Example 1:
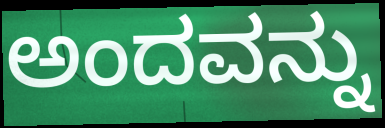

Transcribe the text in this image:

ಅಂದವನ್ನು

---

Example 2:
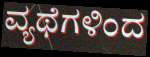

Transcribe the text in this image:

ವ್ಯಥೆಗಳಿಂದ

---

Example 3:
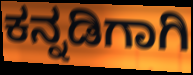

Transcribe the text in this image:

ಕನ್ನಡಿಗಾಗಿ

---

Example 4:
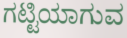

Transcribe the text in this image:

ಗಟ್ಟಿಯಾಗುವ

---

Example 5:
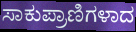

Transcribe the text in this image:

ಸಾಕುಪ್ರಾಣಿಗಳಾದ